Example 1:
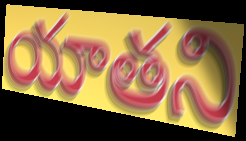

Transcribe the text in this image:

యాతని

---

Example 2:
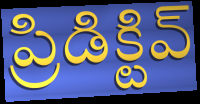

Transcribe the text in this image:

ప్రిడిక్టివ్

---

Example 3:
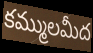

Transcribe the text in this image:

కమ్ములమీద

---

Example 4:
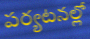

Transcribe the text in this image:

పర్యటనల్లో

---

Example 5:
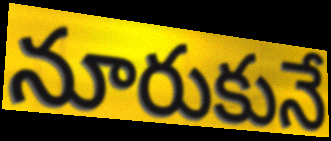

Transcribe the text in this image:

నూరుకునే